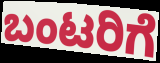
ಬಂಟರಿಗೆ